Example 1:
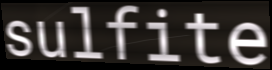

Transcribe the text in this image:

sulfite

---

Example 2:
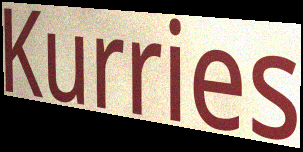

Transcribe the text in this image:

Kurries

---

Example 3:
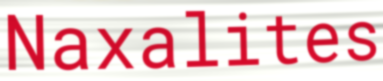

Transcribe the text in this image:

Naxalites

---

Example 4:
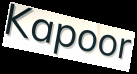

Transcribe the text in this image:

Kapoor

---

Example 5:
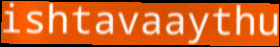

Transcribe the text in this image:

ishtavaaythu